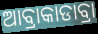
ଆବ୍ରାକାଡାବ୍ରା